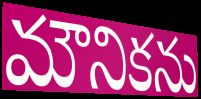
మౌనికను